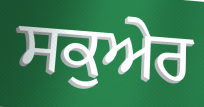
ਸਕੁਅੇਰ